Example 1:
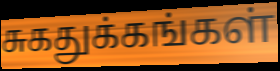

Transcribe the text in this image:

சுகதுக்கங்கள்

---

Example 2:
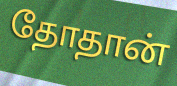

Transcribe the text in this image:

தோதான்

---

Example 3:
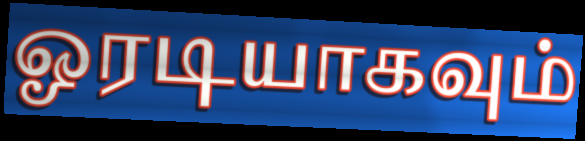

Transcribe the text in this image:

ஓரடியாகவும்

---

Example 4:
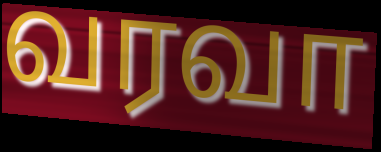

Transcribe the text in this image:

வரவா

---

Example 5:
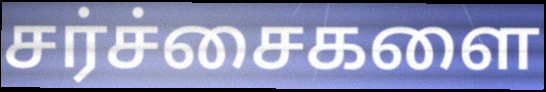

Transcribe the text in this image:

சர்ச்சைகளை